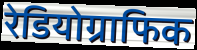
रेडियोग्राफिक